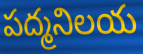
పద్మనిలయ